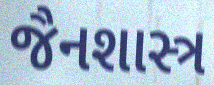
જૈનશાસ્ત્ર